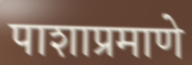
पाशाप्रमाणे